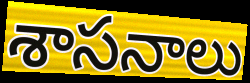
శాసనాలు